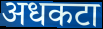
अधकटा